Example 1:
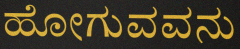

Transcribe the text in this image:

ಹೋಗುವವನು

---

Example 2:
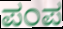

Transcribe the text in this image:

ಪಂಪ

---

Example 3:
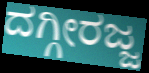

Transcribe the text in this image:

ದಗ್ಗೀರಜ್ಜ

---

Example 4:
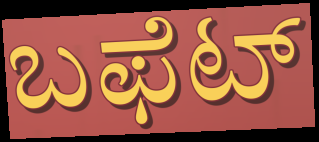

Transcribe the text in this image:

ಬಫೆಟ್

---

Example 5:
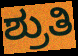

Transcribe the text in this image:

ಶ್ರುತಿ